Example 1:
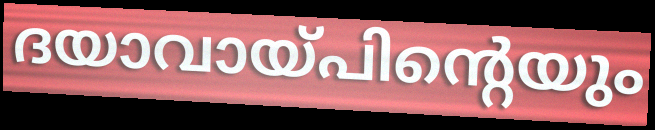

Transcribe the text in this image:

ദയാവായ്പിന്റെയും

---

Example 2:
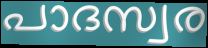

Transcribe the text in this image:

പാദസ്വര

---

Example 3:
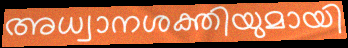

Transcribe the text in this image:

അധ്വാനശക്തിയുമായി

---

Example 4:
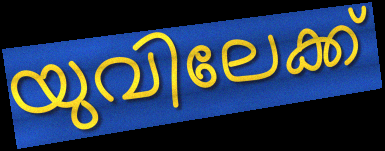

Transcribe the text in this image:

യുവിലേക്ക്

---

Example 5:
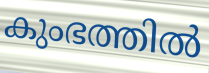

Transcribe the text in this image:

കുംഭത്തിൽ